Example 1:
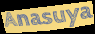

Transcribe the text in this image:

Anasuya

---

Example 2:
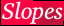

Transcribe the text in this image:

Slopes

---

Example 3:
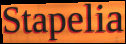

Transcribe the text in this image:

Stapelia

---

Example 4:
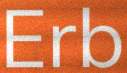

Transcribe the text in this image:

Erb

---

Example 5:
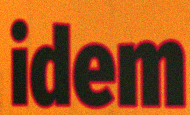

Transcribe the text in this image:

idem